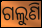
ଗଲୁଣି